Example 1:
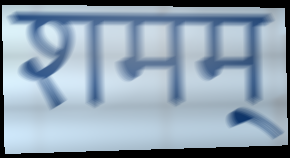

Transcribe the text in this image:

शमम्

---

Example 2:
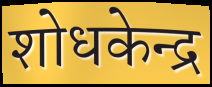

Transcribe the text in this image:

शोधकेन्द्र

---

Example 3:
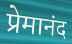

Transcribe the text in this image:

प्रेमानंद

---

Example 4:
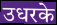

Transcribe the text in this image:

उधरके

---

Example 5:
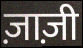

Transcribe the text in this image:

ज़ाज़ी